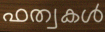
ഫത്വകൾ